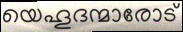
യെഹൂദന്മാരോട്